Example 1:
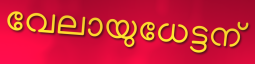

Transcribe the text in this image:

വേലായുധേട്ടന്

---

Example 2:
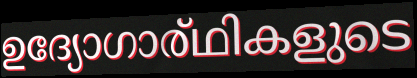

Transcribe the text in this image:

ഉദ്യോഗാര്ഥികളുടെ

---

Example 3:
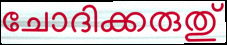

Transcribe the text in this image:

ചോദിക്കരുതു്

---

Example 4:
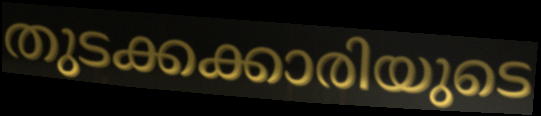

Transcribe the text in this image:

തുടക്കക്കാരിയുടെ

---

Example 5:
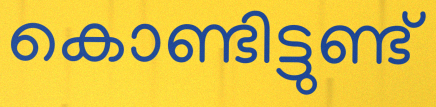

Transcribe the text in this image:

കൊണ്ടിട്ടുണ്ട്